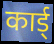
कार्ड्